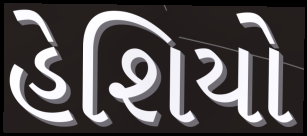
હેશિયો